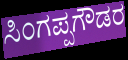
ಸಿಂಗಪ್ಪಗೌಡರ